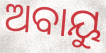
ଅବାୟୁ